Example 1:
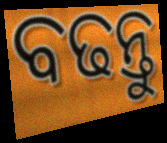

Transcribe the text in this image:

ବଢନ୍ତୁ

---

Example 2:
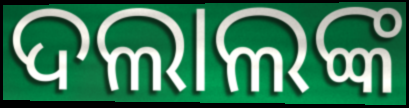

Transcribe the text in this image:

ଦଲାଲଙ୍କ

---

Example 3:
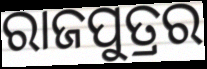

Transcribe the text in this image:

ରାଜପୁତ୍ରର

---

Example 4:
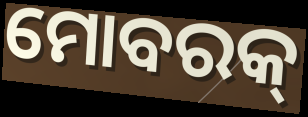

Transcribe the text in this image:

ମୋବରକ୍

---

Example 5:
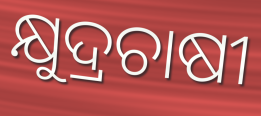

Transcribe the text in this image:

କ୍ଷୁଦ୍ରଚାଷୀ